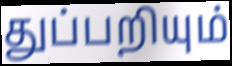
துப்பறியும்